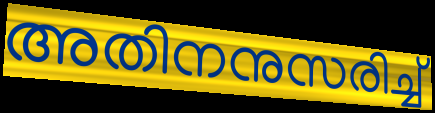
അതിനനുസരിച്ച്